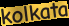
kolkata